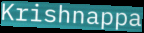
Krishnappa